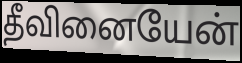
தீவினையேன்